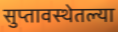
सुप्तावस्थेतल्या